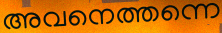
അവനെത്തന്നെ